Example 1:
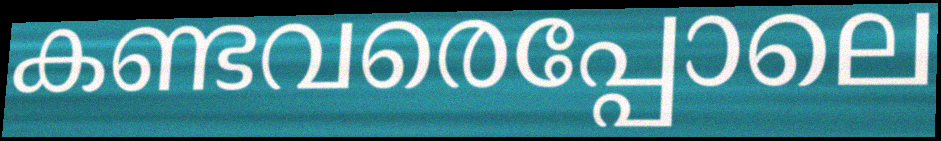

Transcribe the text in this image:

കണ്ടവരെപ്പോലെ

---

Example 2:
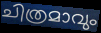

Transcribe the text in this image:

ചിത്രമാവും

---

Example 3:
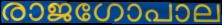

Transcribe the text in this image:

രാജഗോപാല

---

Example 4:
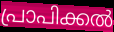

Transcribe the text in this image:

പ്രാപിക്കൽ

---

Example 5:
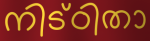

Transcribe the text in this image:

നിട്ഠിതാ